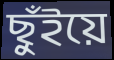
ছুঁইয়ে